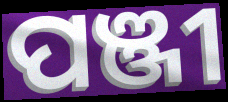
ପଞ୍ଜୀ